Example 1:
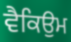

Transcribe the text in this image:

ਵੈਕਿਉਮ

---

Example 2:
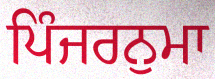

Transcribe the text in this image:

ਪਿੰਜਰਨੁਮਾ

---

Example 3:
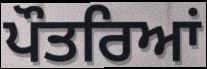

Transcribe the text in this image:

ਪੌਤਰਿਆਂ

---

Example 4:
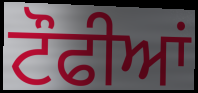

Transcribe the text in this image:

ਟੌਫੀਆਂ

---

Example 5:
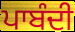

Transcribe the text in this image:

ਪਾਬੰਦੀ